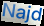
Najd